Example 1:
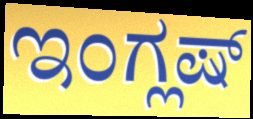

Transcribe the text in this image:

ಇಂಗ್ಲಷ್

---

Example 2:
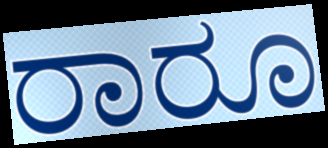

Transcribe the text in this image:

ರಾರೂ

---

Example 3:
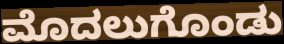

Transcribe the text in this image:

ಮೊದಲುಗೊಂಡು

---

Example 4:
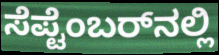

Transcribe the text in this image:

ಸೆಪ್ಟೆಂಬರ್‌ನಲ್ಲಿ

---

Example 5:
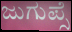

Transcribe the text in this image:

ಜುಗುಪ್ಸೆ